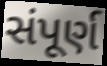
સંપૂર્ણ